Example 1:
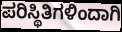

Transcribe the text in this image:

ಪರಿಸ್ಥಿತಿಗಳಿಂದಾಗಿ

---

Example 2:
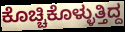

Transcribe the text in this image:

ಕೊಚ್ಚಿಕೊಳ್ಳುತ್ತಿದ್ದ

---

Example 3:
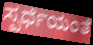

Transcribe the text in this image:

ಸ್ಪರ್ಧೆಯಂತೆ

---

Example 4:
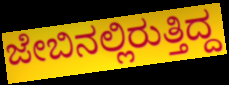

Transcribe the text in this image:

ಜೇಬಿನಲ್ಲಿರುತ್ತಿದ್ದ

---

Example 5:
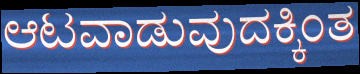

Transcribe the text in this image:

ಆಟವಾಡುವುದಕ್ಕಿಂತ